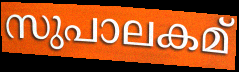
സുപാലകമ്